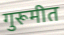
गुरूमीत